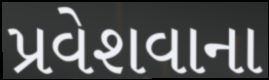
પ્રવેશવાના